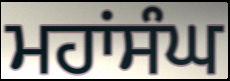
ਮਹਾਂਸੰਘ